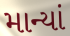
માન્યાં